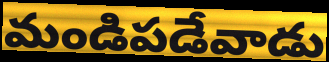
మండిపడేవాడు